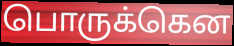
பொருக்கென